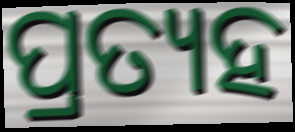
ପ୍ରତ୍ଯହ